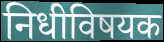
निधीविषयक